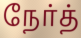
நேர்த்